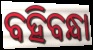
ବହିବନ୍ଧା